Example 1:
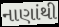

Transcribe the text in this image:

નાણાંથી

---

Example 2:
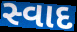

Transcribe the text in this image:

સ્વાદ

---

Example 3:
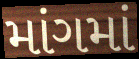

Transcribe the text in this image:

માંગમાં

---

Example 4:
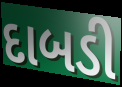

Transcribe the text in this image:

દાબડી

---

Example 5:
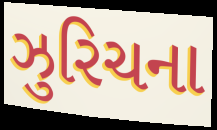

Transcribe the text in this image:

ઝુરિચના